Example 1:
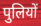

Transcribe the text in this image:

पुलियों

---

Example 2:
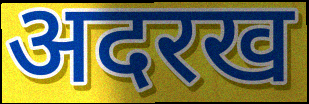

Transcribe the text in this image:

अदरख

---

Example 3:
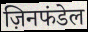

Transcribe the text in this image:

ज़िनफंडेल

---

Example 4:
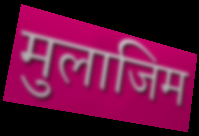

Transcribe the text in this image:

मुलाजिम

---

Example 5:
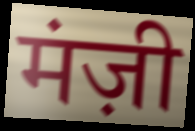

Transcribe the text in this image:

मंज़ी